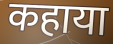
कहाया